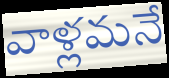
వాళ్లమనే